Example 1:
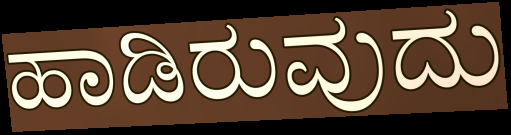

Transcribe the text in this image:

ಹಾಡಿರುವುದು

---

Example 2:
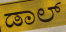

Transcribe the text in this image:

ಡಾಲ್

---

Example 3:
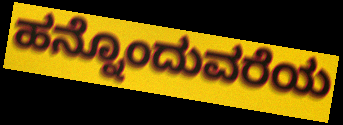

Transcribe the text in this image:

ಹನ್ನೊಂದುವರೆಯ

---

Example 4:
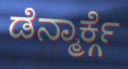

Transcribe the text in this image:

ಡೆನ್ಮಾರ್ಕ್ಗೆ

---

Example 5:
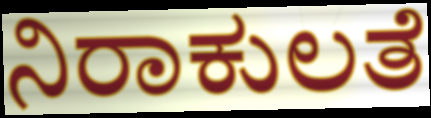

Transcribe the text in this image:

ನಿರಾಕುಲತೆ